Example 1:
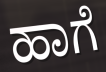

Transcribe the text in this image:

ಹಾಗೆ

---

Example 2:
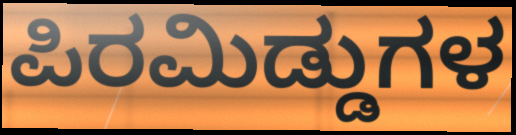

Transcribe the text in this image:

ಪಿರಮಿಡ್ಡುಗಳ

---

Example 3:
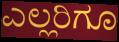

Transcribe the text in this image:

ಎಲ್ಲರಿಗೂ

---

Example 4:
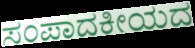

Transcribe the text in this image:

ಸಂಪಾದಕೀಯದ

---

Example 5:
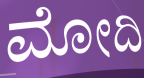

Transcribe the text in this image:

ಮೋದಿ